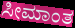
ಸೀಮಾಂತ